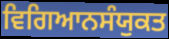
ਵਿਗਿਆਨਸੰਯੁਕਤ